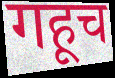
गहूच